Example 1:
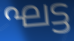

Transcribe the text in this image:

ഘട്ട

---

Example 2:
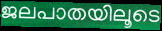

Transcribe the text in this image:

ജലപാതയിലൂടെ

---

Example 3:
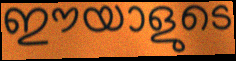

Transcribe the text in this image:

ഈയാളുടെ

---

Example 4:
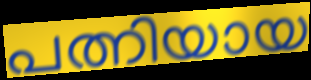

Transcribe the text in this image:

പത്നിയായ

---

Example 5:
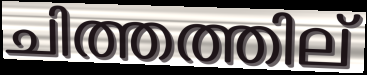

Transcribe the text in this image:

ചിത്തത്തില്